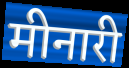
मीनारी